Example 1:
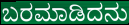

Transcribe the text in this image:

ಬರಮಾಡಿದನು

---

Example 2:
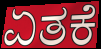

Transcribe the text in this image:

ಏತಕೆ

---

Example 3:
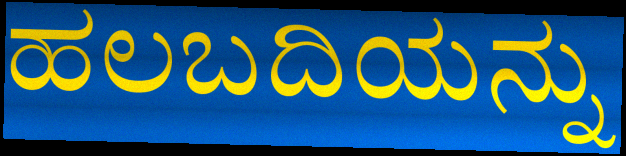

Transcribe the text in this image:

ಹಲಬದಿಯನ್ನು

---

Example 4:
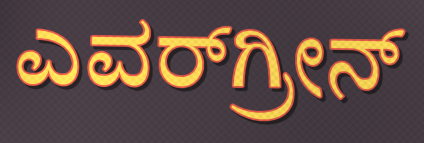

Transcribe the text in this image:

ಎವರ್‌ಗ್ರೀನ್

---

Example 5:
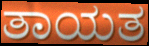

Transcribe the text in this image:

ತಾಯತ